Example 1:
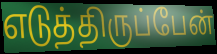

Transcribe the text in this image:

எடுத்திருப்பேன்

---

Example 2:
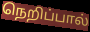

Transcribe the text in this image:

நெறிப்பால்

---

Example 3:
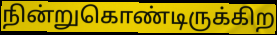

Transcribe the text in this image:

நின்றுகொண்டிருக்கிற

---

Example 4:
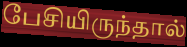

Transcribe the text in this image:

பேசியிருந்தால்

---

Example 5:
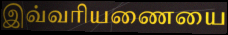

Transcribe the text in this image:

இவ்வரியணையை